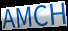
AMCH